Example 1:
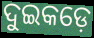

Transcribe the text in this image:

ଦୁଇକଡ଼େ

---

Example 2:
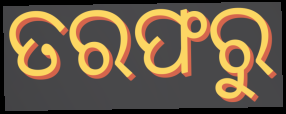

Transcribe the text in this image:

ତରଫରୁ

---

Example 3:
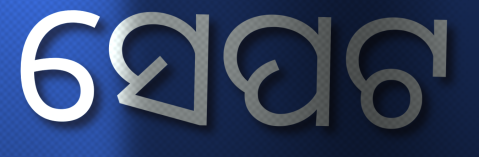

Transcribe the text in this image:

ସେପଟ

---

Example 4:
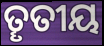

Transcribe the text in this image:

ତୄତୀୟ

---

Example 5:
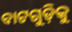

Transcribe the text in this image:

ବାଟଗୁଡ଼ିକୁ